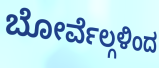
ಬೋರ್ವೆಲ್ಗಳಿಂದ